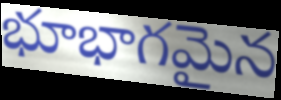
భూభాగమైన